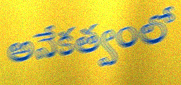
అనేకత్వంలో